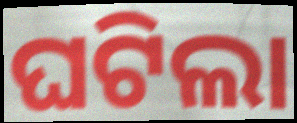
ଘଟିଲା